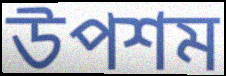
উপশম